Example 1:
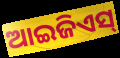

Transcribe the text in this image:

ଆଇଜିଏସ୍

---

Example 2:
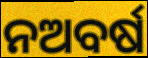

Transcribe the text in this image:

ନଅବର୍ଷ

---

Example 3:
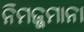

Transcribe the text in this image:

ନିମଜ୍ଜମାନା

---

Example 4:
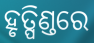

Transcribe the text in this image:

ହୃତ୍ପିଣ୍ଡରେ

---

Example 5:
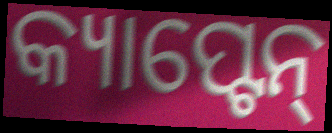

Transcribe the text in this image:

କ୍ୟାପ୍ଟେନ୍